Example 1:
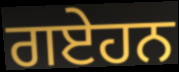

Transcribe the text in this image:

ਗਏਹਨ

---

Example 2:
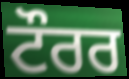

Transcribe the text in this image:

ਟੌਰਰ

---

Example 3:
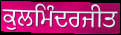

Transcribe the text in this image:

ਕੁਲਮਿੰਦਰਜੀਤ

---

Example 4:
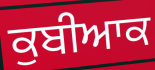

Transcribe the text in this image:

ਕੁਬੀਆਕ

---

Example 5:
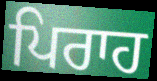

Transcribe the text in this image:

ਪਿਰਾਹ